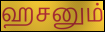
ஹசனும்